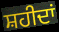
ਸ਼ਹੀਦਾਂ